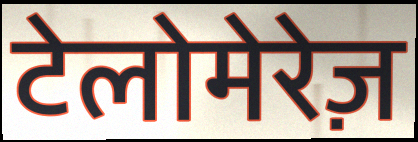
टेलोमेरेज़